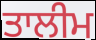
ਤਾਲੀਮ